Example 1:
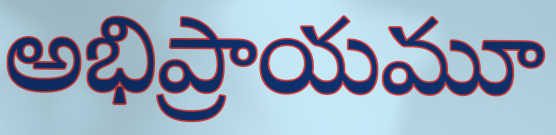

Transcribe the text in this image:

అభిప్రాయమూ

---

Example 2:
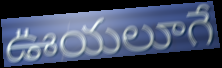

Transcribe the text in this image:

ఊయలూగే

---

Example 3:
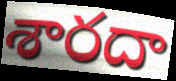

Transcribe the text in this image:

శారదా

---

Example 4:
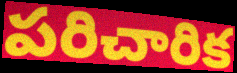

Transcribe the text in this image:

పరిచారిక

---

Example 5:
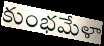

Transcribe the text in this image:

కుంభమేళా